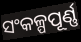
ସଂକଳ୍ପପୂର୍ଣ୍ଣ